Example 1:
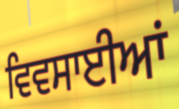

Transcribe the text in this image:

ਵਿਵਸਾਈਆਂ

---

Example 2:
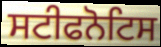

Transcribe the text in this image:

ਸਟੀਫਨੋਟਿਸ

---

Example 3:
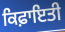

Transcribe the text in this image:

ਕਿਫ਼ਾਇਤੀ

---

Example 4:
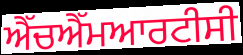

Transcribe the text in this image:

ਐੱਚਐੱਮਆਰਟੀਸੀ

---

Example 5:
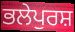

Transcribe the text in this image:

ਭਲੇਪੁਰਸ਼